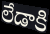
లేడాకి